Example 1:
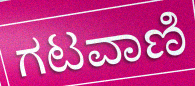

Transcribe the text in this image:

ಗಟವಾಣಿ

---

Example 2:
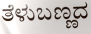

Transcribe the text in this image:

ತೆಳುಬಣ್ಣದ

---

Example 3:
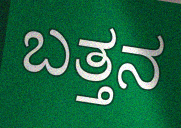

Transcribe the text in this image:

ಬತ್ತನ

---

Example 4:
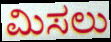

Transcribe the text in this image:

ಮಿಸಲು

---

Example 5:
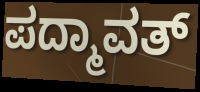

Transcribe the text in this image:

ಪದ್ಮಾವತ್